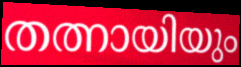
തത്നായിയും